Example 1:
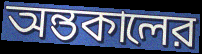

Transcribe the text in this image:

অন্তকালের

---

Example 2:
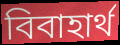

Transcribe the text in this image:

বিবাহার্থ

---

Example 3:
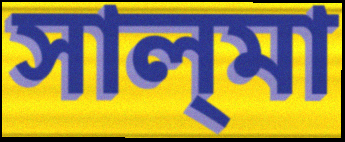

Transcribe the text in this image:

সাল্‌মা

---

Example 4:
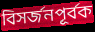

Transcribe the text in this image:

বিসর্জনপূর্বক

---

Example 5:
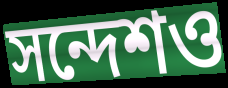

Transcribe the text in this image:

সন্দেশও